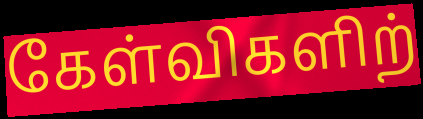
கேள்விகளிற்